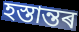
হস্তান্তৰ